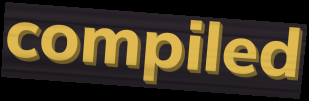
compiled